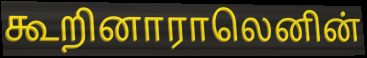
கூறினாராலெனின்